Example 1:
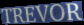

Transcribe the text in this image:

TREVOR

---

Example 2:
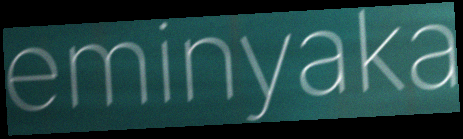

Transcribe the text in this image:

eminyaka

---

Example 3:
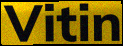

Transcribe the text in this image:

Vitin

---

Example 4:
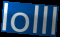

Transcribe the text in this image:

lolll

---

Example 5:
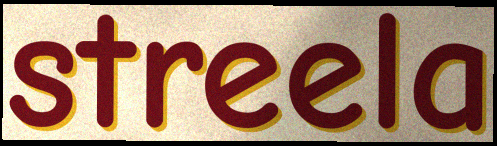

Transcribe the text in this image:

streela